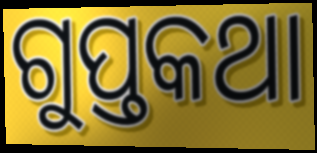
ଗୁପ୍ତକଥା